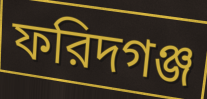
ফরিদগঞ্জ